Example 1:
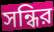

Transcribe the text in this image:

সন্ধির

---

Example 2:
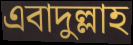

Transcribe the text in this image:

এবাদুল্লাহ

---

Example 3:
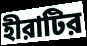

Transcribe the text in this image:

হীরাটির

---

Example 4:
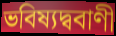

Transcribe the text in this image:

ভবিষ্যদ্ববাণী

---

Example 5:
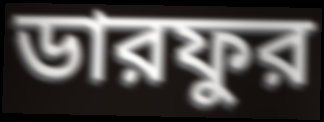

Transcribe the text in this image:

ডারফুর